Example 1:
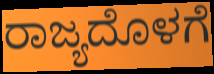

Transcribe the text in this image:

ರಾಜ್ಯದೊಳಗೆ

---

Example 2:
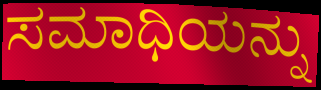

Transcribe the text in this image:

ಸಮಾಧಿಯನ್ನು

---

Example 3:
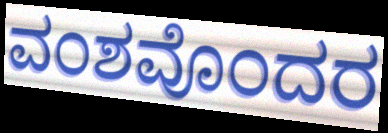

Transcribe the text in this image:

ವಂಶವೊಂದರ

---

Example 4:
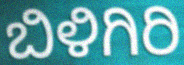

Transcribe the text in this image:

ಬಿಳಿಗಿರಿ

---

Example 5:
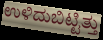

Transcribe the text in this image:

ಉಳಿದುಬಿಟ್ಟಿತ್ತು